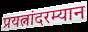
प्रयत्नांदरम्यान